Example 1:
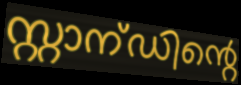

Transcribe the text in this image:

സ്റ്റാന്ഡിന്റെ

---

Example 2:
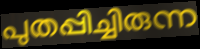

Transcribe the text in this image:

പുതപ്പിച്ചിരുന്ന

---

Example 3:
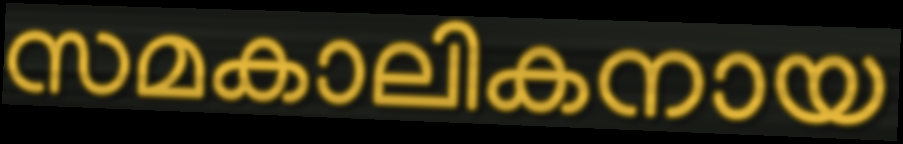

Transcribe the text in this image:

സമകാലികനായ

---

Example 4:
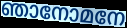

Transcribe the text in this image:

ഞാനോമനേ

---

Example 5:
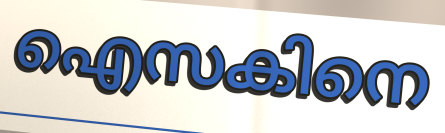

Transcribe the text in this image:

ഐസകിനെ